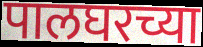
पालघरच्या